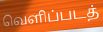
வெளிப்படத்